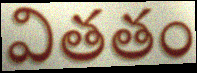
వితతం